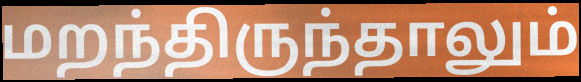
மறந்திருந்தாலும்